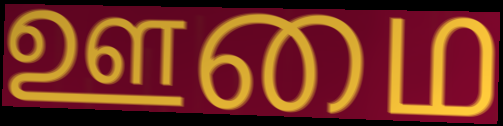
ஊமை